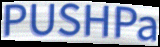
PUSHPa